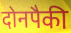
दोनपैकी